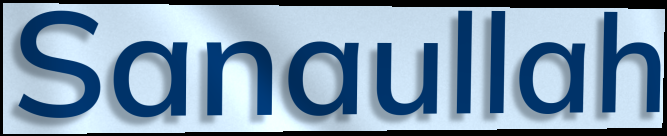
Sanaullah